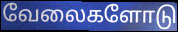
வேலைகளோடு